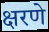
क्षरणे